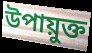
উপায়ুক্ত